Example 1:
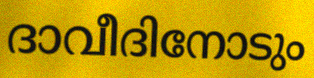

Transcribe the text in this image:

ദാവീദിനോടും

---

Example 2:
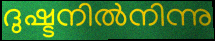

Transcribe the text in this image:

ദുഷ്ടനിൽനിന്നു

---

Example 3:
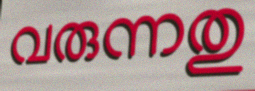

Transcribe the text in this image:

വരുന്നതു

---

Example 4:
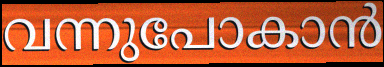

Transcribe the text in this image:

വന്നുപോകാൻ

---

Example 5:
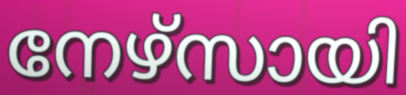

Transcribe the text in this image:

നേഴ്സായി